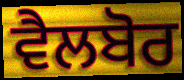
ਵੈਲਬੋਰ